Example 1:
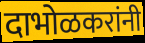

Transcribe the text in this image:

दाभोळकरांनी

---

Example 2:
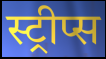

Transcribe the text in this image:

स्ट्रीप्स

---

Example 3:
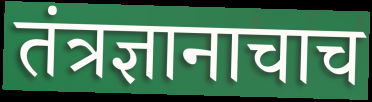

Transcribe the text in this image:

तंत्रज्ञानाचाच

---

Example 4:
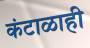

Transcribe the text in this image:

कंटाळाही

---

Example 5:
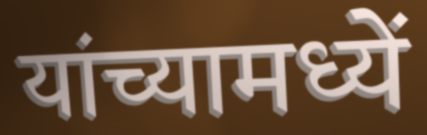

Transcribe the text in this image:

यांच्यामध्यें